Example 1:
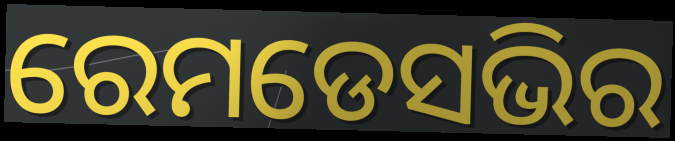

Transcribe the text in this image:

ରେମଡେସଭିର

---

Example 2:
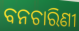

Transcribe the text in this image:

ବନଚାରିଣୀ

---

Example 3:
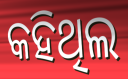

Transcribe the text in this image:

କହିଥିଲ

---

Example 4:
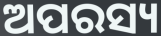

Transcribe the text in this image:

ଅପରସ୍ୟ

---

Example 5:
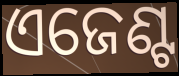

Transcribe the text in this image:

ଏଜେଣ୍ଟ